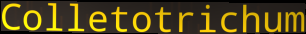
Colletotrichum